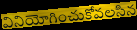
వినియోగించుకోవలసిన